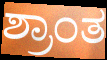
ಶ್ರಾಂತ